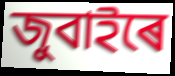
জুবাইৰে